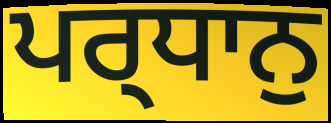
ਪਰ੍ਧਾਨੁ